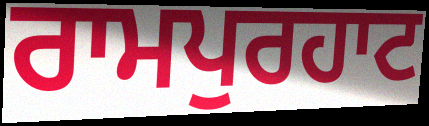
ਰਾਮਪੁਰਹਾਟ